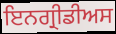
ਇਨਗ੍ਰੀਡੀਅਸ